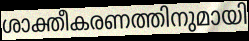
ശാക്തീകരണത്തിനുമായി